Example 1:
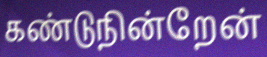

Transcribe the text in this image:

கண்டுநின்றேன்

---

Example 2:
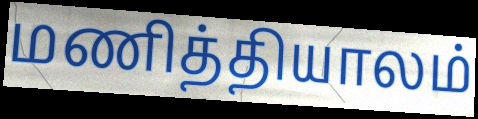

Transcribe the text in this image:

மணித்தியாலம்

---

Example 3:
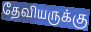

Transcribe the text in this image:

தேவியருக்கு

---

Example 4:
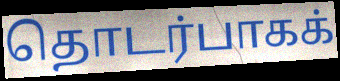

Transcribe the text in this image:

தொடர்பாகக்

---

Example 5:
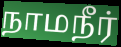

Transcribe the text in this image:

நாமநீர்